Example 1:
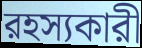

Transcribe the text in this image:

রহস্যকারী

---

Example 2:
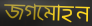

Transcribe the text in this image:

জগমোহন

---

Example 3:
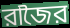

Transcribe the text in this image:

রাজৈর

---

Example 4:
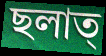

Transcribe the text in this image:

ছলাত্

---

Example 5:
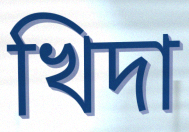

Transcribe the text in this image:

খিদা